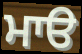
ਮਾੳ